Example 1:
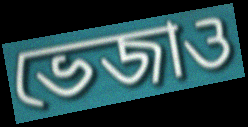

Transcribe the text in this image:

ভেজাও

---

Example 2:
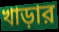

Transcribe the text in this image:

খাড়ার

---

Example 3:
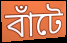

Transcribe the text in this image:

বাঁটে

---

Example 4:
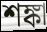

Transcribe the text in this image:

শঙ্কা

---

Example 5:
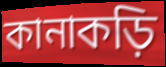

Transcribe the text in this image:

কানাকড়ি